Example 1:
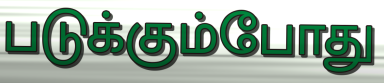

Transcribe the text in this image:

படுக்கும்போது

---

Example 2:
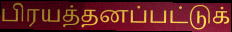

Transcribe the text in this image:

பிரயத்தனப்பட்டுக்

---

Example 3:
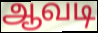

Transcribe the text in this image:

ஆவடி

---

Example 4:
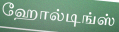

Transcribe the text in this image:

ஹோல்டிங்ஸ்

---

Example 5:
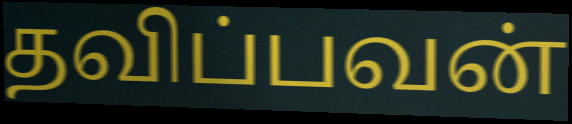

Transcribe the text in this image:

தவிப்பவன்